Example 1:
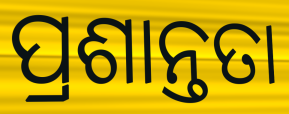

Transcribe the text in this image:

ପ୍ରଶାନ୍ତତା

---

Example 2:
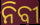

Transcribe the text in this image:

ନିବୀ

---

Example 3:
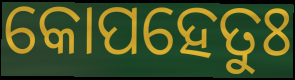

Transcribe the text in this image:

କୋପହେତୁଃ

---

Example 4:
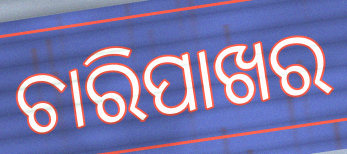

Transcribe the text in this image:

ଚାରିପାଖର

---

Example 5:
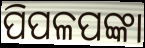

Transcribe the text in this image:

ପିପଳପଙ୍କା